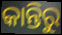
କାନ୍ତିରୁ